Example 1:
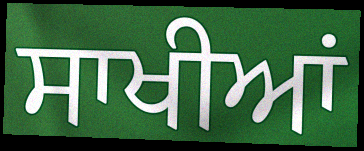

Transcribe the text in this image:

ਸਾਖੀਆਂ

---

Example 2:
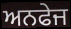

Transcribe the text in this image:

ਅਨਫੇਜ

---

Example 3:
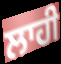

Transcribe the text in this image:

ਲਾਹੀ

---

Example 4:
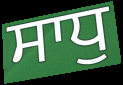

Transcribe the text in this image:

ਸਾਧੁ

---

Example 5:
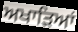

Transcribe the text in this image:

ਅਖਾੜਿਆਂ